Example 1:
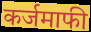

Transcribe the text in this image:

कर्जमाफी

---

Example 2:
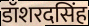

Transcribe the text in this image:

डॉशरदसिंह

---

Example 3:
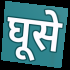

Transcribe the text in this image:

घूसे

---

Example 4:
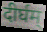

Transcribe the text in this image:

दीर्घम्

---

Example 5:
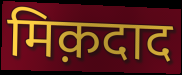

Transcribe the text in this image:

मिक़दाद